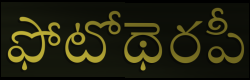
ఫోటోథెరపీ